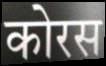
कोरस